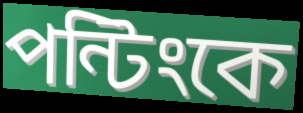
পন্টিংকে